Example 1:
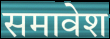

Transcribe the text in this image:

समावेश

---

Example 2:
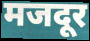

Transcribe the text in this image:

मजदूर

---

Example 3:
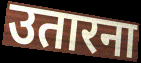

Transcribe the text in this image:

उतारना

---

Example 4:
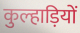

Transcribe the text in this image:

कुल्हाड़ियों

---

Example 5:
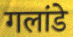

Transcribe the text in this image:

गलांडे